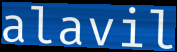
alavil